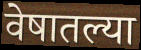
वेषातल्या